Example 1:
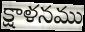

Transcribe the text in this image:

క్షాళనము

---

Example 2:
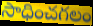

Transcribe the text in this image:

సాధించగలం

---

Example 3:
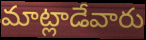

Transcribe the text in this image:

మాట్లాడేవారు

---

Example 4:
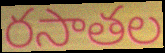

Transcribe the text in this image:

రసాతల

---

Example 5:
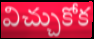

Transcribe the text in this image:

విచ్చుకోక